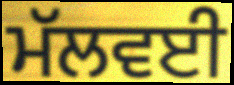
ਮੱਲਵਈ